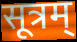
सूत्रम्